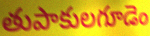
తుపాకులగూడెం